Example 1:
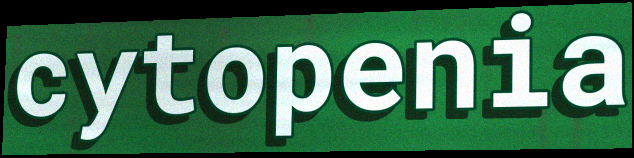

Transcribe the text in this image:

cytopenia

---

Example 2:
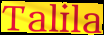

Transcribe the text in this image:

Talila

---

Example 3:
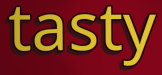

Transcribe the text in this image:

tasty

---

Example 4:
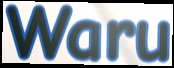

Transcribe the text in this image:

Waru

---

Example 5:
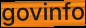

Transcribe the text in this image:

govinfo